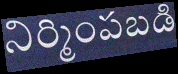
నిర్మింపబడి